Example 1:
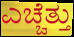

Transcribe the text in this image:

ಎಚ್ಚೆತ್ತು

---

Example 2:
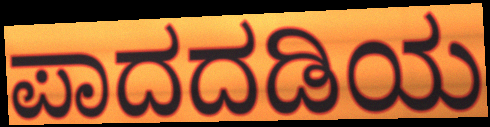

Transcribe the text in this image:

ಪಾದದಡಿಯ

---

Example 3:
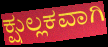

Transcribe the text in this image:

ಕ್ಷುಲ್ಲಕವಾಗಿ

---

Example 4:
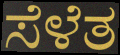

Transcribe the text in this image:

ಸೆಳೆತ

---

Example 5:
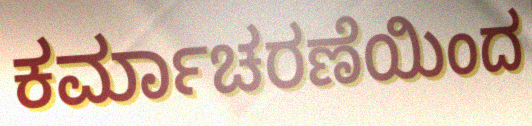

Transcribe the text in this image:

ಕರ್ಮಾಚರಣೆಯಿಂದ